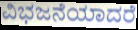
ವಿಭಜನೆಯಾದರೆ